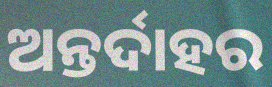
ଅନ୍ତର୍ଦାହର